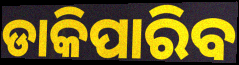
ଡାକିପାରିବ